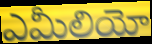
ఎమీలియో